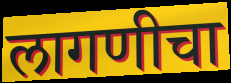
लागणीचा